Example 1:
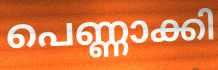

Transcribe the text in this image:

പെണ്ണാക്കി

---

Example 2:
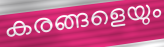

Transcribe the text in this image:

കരങ്ങളെയും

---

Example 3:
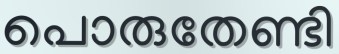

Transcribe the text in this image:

പൊരുതേണ്ടി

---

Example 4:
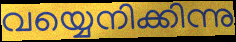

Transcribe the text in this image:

വയ്യെനിക്കിന്നു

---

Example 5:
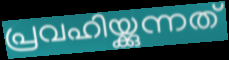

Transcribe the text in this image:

പ്രവഹിയ്ക്കുന്നത്